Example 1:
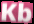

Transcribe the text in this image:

Kb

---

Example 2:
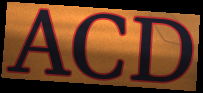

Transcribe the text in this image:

ACD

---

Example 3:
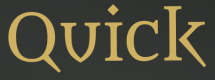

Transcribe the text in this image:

Quick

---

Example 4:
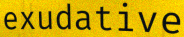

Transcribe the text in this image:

exudative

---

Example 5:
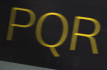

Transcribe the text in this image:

PQR